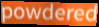
powdered